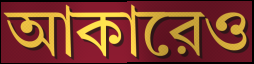
আকারেও